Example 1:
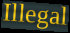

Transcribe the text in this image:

Illegal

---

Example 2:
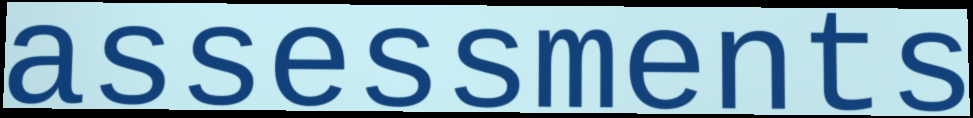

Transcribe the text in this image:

assessments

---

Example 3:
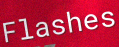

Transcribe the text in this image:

Flashes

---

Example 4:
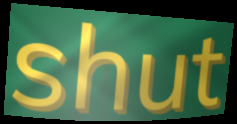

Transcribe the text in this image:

shut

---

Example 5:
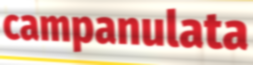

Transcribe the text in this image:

campanulata